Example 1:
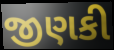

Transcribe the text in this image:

જીણકી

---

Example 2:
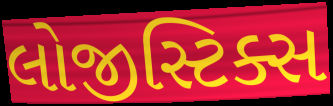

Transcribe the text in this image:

લોજીસ્ટિક્સ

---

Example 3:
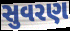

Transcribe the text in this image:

સુવરણ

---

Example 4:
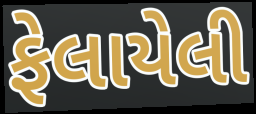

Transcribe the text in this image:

ફેલાયેલી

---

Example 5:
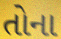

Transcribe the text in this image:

તોના